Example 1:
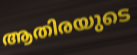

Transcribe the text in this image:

ആതിരയുടെ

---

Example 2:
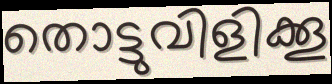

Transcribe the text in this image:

തൊട്ടുവിളിക്കൂ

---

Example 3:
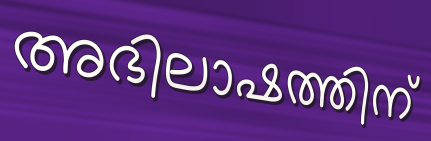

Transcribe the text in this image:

അഭിലാഷത്തിന്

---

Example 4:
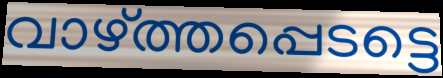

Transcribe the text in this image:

വാഴ്ത്തപ്പെടട്ടെ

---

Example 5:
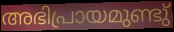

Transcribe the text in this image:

അഭിപ്രായമുണ്ടു്